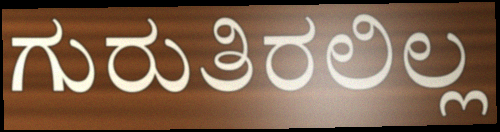
ಗುರುತಿರಲಿಲ್ಲ